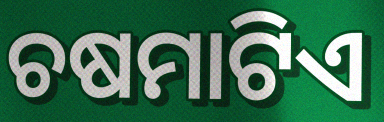
ଚଷମାଟିଏ